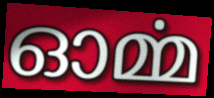
ഓൎമ്മ